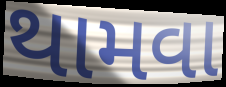
થામવા